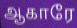
ஆகாரே